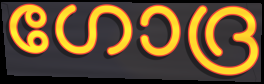
ഗോദ്ര